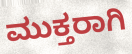
ಮುಕ್ತರಾಗಿ